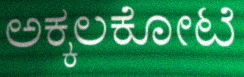
ಅಕ್ಕಲಕೋಟೆ